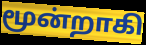
மூன்றாகி